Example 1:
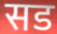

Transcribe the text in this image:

सड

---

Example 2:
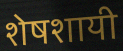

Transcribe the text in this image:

शेषशायी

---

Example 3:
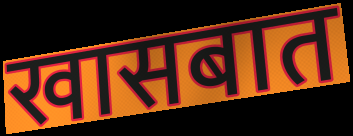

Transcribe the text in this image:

खासबात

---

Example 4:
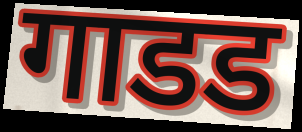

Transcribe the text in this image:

गाडड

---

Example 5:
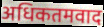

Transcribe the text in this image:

अधिकतमवाद